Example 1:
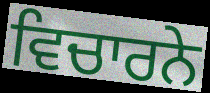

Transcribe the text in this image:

ਵਿਚਾਰਨੇ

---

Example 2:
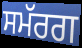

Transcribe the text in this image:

ਸਮੱਰਗ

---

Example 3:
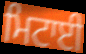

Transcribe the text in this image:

ਮਿਟਾਈ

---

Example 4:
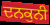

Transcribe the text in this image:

ਦਨਕੁਨੀ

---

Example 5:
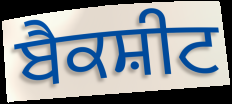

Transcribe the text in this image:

ਬੈਕਸ਼ੀਟ